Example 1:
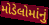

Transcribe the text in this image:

મોડેલોમાંનું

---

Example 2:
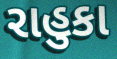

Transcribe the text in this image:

રાહુકા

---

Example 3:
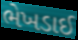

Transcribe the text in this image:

ભેખડાઈ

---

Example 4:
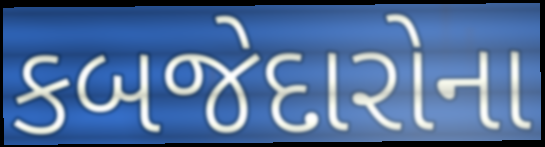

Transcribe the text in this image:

કબજેદારોના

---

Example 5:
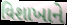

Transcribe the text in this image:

વિશાખાને